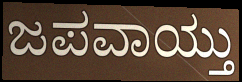
ಜಪವಾಯ್ತು